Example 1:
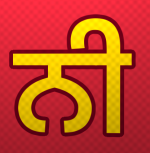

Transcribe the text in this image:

ਨੀ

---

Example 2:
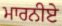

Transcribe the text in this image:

ਮਾਰਨੀਏ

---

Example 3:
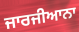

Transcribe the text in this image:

ਜਾਰਜੀਆਨਾ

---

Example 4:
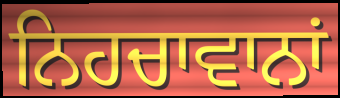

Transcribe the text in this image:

ਨਿਹਚਾਵਾਨਾਂ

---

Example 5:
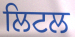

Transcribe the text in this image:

ਲਿਟਲ